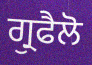
ਗ੍ਰੁਫੈਲੋ